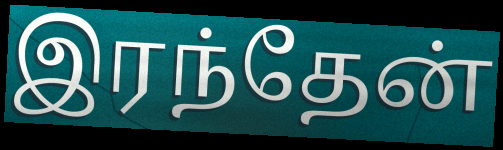
இரந்தேன்